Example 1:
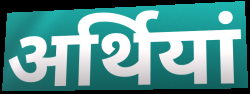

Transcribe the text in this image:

अर्थियां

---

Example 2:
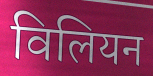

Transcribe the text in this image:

विलियन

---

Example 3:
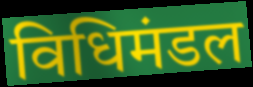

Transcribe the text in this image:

विधिमंडल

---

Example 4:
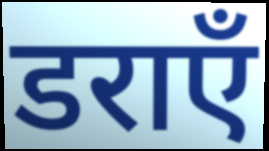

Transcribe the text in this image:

डराएँ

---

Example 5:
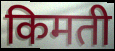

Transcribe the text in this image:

किमती